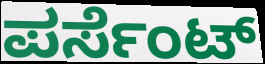
ಪರ್ಸೆಂಟ್